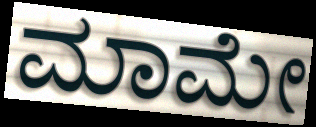
ಮಾಮೇ